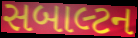
સબાલ્ટન